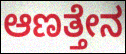
ಆಣತ್ತೇನ